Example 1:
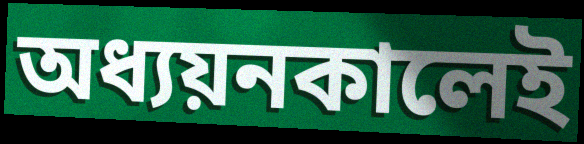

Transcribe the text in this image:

অধ্যয়নকালেই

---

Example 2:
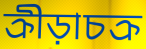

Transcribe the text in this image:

ক্রীড়াচক্র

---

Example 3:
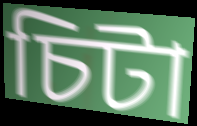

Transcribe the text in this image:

চিটা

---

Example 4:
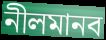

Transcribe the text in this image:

নীলমানব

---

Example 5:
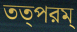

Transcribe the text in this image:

তত্পরম্